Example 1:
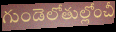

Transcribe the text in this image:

గుండెలోతుల్లోంచీ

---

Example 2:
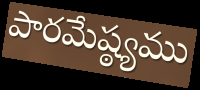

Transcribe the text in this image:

పారమేష్ఠ్యము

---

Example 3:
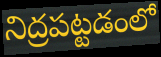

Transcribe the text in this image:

నిద్రపట్టడంలో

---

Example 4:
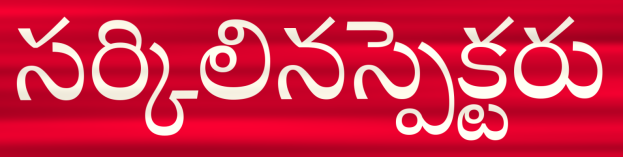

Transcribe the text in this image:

సర్కిలినస్పెక్టరు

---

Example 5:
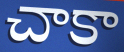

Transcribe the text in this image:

చాకా